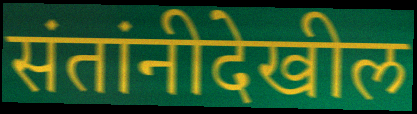
संतांनीदेखील